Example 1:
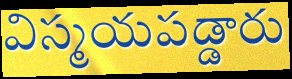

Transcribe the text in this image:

విస్మయపడ్డారు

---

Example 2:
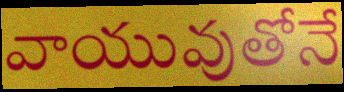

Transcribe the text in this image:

వాయువుతోనే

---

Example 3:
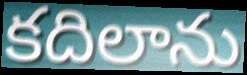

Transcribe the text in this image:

కదిలాను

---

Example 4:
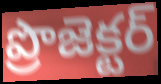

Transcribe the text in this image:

ప్రొజెక్టర్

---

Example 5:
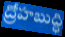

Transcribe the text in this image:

ద్రోహబుద్ధి